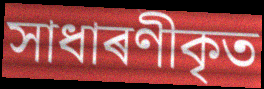
সাধাৰণীকৃত